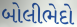
બોલીભેદો